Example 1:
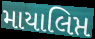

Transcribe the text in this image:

માયાલિપ્ત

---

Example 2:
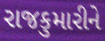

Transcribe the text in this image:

રાજકુમારીને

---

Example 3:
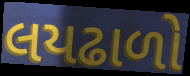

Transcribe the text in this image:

લયઢાળો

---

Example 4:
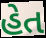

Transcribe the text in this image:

હેત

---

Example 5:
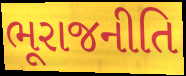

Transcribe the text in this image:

ભૂરાજનીતિ